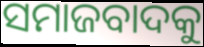
ସମାଜବାଦକୁ